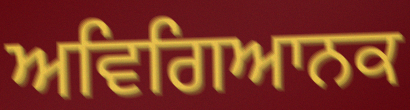
ਅਵਿਗਿਆਨਕ